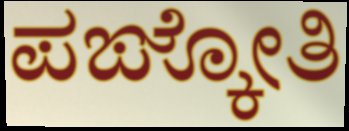
ಪಙ್ಕೋತಿ